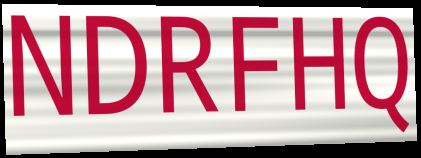
NDRFHQ